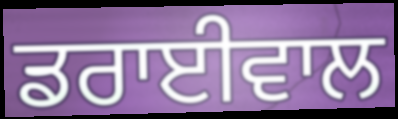
ਡਰਾਈਵਾਲ